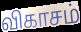
விகாசம்